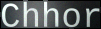
Chhor